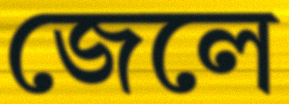
জেলে